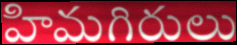
హిమగిరులు